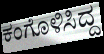
ಕಂಗೊಳಿಸಿದ್ದ